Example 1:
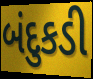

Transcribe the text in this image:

બંદુકડી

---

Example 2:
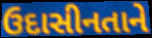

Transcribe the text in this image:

ઉદાસીનતાને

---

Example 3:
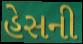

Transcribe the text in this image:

હેસની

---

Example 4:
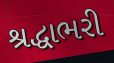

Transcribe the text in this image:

શ્રદ્ધાભરી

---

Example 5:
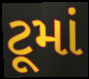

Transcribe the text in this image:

ટૂમાં